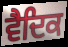
ਵੈਦਿਕ